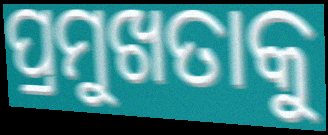
ପ୍ରମୁଖତାକୁ